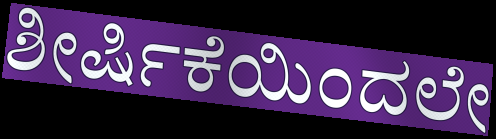
ಶೀರ್ಷಿಕೆಯಿಂದಲೇ